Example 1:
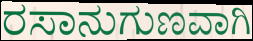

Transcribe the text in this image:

ರಸಾನುಗುಣವಾಗಿ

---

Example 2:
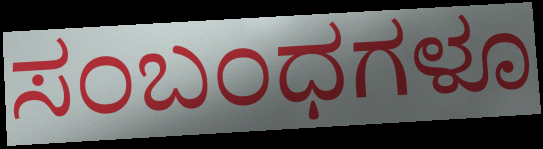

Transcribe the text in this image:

ಸಂಬಂಧಗಳೂ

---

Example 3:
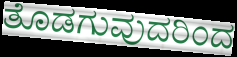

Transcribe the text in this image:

ತೊಡಗುವುದರಿಂದ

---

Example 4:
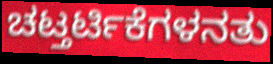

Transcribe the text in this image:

ಚಟ್ತರ್ಟಿಕೆಗಳನತು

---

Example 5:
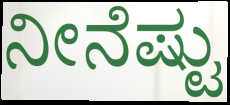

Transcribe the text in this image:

ನೀನೆಷ್ಟು